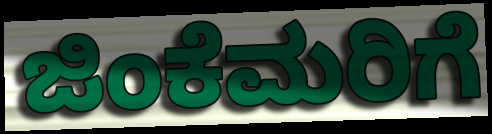
ಜಿಂಕೆಮರಿಗೆ